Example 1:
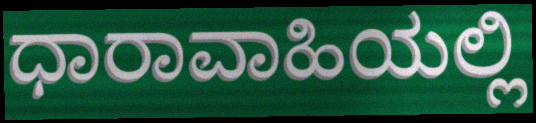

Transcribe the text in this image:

ಧಾರಾವಾಹಿಯಲ್ಲಿ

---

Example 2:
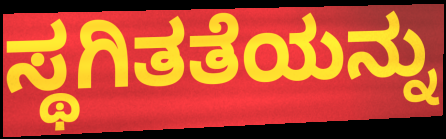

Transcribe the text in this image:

ಸ್ಥಗಿತತೆಯನ್ನು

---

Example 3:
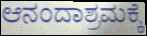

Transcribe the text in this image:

ಆನಂದಾಶ್ರಮಕ್ಕೆ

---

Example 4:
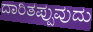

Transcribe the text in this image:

ದಾರಿತಪ್ಪುವುದು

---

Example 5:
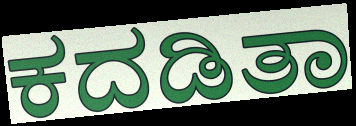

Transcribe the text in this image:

ಕದಡಿತಾ